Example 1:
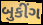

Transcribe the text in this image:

બુકીંગ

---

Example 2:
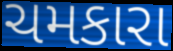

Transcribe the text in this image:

ચમકારા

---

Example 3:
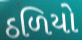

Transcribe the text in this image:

ઠળિયો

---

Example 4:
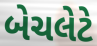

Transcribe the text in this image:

બેચલેટે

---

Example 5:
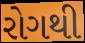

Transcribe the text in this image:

રોગથી